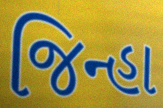
જિન્હા